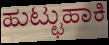
ಹುಟ್ಟುಹಾಕಿ